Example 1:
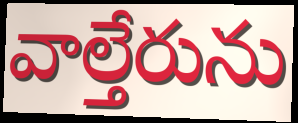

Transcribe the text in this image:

వాల్తేరును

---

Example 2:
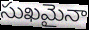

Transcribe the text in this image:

సుఖమైనా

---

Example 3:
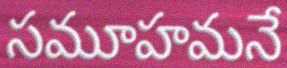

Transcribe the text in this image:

సమూహమనే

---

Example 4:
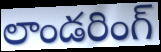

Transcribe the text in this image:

లాండరింగ్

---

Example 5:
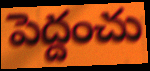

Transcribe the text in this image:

పెద్దంచు